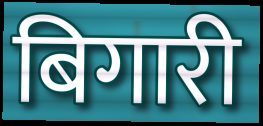
बिगारी